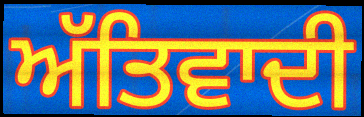
ਅੱਤਿਵਾਦੀ